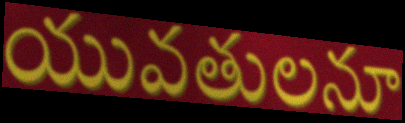
యువతులనూ